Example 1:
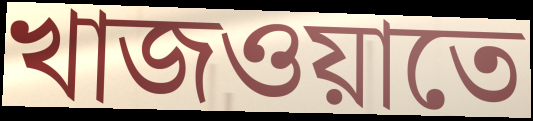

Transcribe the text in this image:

খাজওয়াতে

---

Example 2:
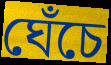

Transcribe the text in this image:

ঘেঁচে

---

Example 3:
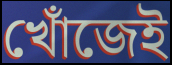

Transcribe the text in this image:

খোঁজেই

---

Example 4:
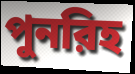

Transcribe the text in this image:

পুনরিহ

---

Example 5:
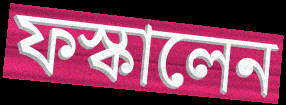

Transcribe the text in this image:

ফস্কালেন